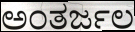
ಅಂತರ್ಜಲ